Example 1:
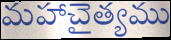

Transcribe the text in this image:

మహాచైత్యము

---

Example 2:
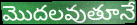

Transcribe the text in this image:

మొదలవుతూనే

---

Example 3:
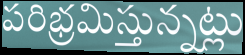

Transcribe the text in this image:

పరిభ్రమిస్తున్నట్లు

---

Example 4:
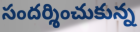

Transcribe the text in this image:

సందర్శించుకున్న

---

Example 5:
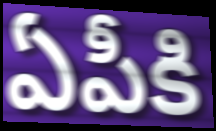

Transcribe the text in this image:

ఏపీకి